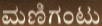
ಮಣಿಗಂಟು